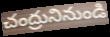
చంద్రునినుండి